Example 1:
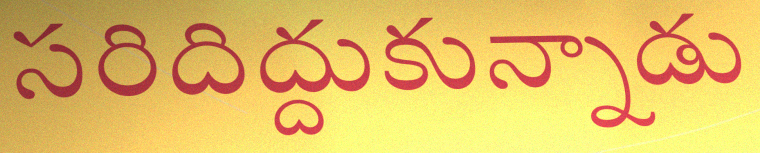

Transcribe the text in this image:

సరిదిద్దుకున్నాడు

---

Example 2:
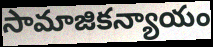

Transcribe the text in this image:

సామాజికన్యాయం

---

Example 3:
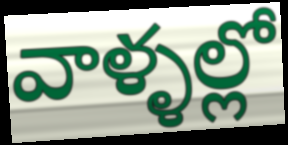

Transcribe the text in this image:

వాళ్ళల్లో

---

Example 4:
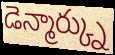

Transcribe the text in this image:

డెన్మార్క్ను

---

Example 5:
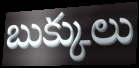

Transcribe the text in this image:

బుక్కులు